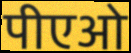
पीएओ